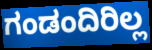
ಗಂಡಂದಿರಿಲ್ಲ